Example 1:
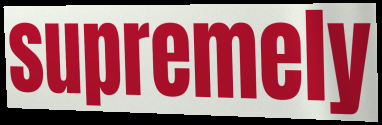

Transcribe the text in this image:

supremely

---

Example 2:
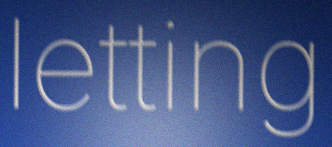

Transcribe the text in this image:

letting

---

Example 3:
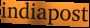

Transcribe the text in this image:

indiapost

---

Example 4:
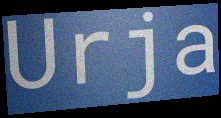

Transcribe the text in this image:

Urja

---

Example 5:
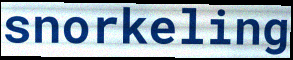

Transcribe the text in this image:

snorkeling